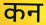
कन